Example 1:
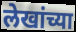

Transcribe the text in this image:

लेखांच्या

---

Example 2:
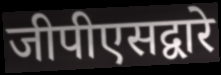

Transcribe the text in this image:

जीपीएसद्वारे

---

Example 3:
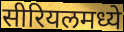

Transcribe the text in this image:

सीरियलमध्ये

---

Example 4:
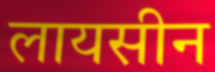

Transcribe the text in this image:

लायसीन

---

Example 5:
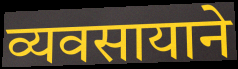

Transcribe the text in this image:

व्यवसायाने